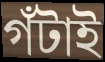
গঁটাই